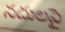
నదులపై